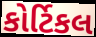
કોર્ટિકલ